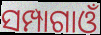
ସମ୍ପାଗାଓଁ